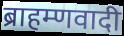
ब्राहम्णवादी